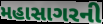
મહાસાગરની